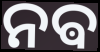
ନଵ